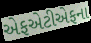
એફએટીએફના